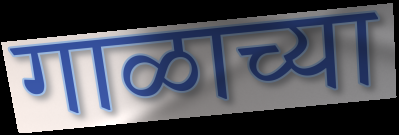
गाळाच्या